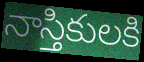
నాస్తికులకి